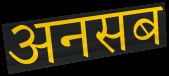
अनसब